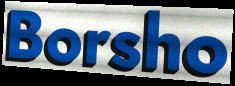
Borsho